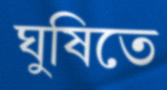
ঘুষিতে